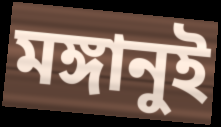
মঙ্গানুই